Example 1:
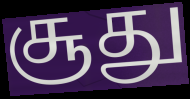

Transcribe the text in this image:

சூது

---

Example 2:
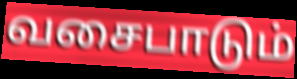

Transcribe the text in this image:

வசைபாடும்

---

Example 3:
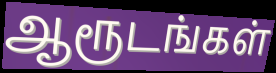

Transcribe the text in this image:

ஆரூடங்கள்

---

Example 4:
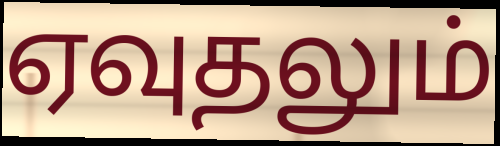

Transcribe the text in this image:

ஏவுதலும்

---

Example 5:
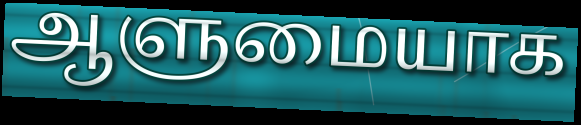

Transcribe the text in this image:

ஆளுமையாக